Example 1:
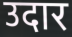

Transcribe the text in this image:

उदार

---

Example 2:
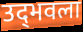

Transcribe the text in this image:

उद्‌भवला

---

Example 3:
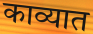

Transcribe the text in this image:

काव्यात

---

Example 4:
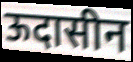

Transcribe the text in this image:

ऊदासीन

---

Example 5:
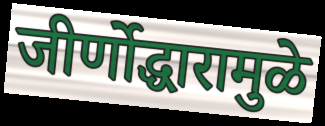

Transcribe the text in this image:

जीर्णोद्धारामुळे